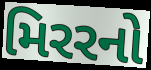
મિરરનો